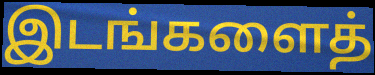
இடங்களைத்